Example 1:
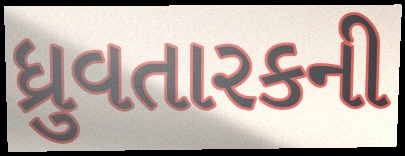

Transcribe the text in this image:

ધ્રુવતારકની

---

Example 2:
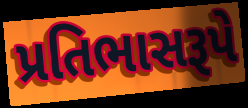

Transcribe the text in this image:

પ્રતિભાસરૂપે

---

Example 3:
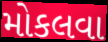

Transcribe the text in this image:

મોકલવા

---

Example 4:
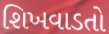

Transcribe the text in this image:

શિખવાડતો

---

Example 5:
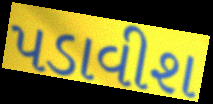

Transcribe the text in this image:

પડાવીશ